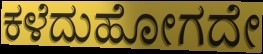
ಕಳೆದುಹೋಗದೇ